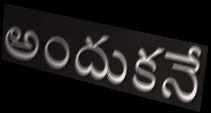
అందుకనే